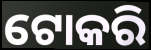
ଟୋକରି